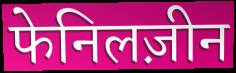
फेनिलज़ीन